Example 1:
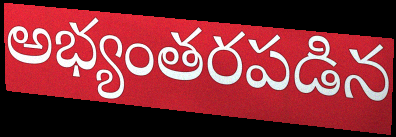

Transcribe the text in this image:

అభ్యంతరపడిన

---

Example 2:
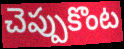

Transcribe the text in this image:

చెప్పుకొంట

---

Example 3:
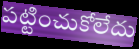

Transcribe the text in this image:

పట్టించుకోలేదు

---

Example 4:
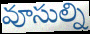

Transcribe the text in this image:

వూసుల్ని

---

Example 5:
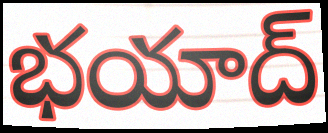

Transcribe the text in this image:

భయాద్